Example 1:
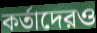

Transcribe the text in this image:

কর্তাদেরও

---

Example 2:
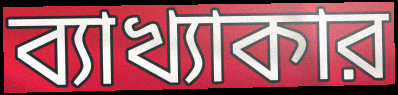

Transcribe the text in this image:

ব্যাখ্যাকার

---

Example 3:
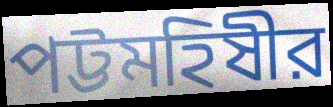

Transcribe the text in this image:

পট্টমহিষীর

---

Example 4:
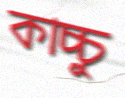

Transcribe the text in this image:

কাচ্চু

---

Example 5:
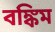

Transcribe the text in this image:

বঙ্কিম